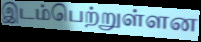
இடம்பெற்றுள்ளன